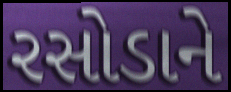
રસોડાને